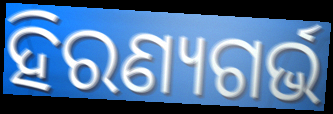
ହିରଣ୍ୟଗର୍ଭ